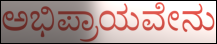
ಅಭಿಪ್ರಾಯವೇನು